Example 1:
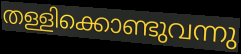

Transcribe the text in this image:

തള്ളിക്കൊണ്ടുവന്നു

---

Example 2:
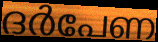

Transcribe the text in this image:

ദർപേണ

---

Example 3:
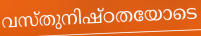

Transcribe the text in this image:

വസ്തുനിഷ്ഠതയോടെ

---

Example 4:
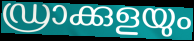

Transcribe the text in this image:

ഡ്രാക്കുളയും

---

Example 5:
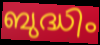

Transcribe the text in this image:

ബുദ്ധിം